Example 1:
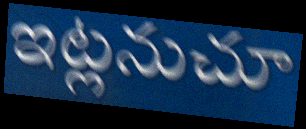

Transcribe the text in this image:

ఇట్లనుచూ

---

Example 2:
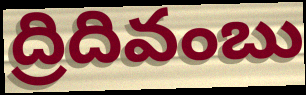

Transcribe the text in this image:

ద్రిదివంబు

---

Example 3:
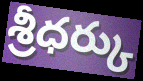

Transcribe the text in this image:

శ్రీధర్కు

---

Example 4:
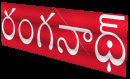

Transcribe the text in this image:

రంగనాథ్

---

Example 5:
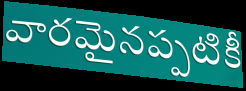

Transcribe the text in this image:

వారమైనప్పటికీ